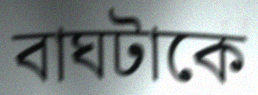
বাঘটাকে